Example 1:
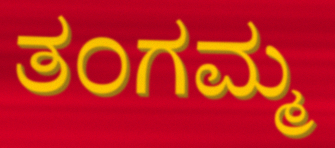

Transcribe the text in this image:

ತಂಗಮ್ಮ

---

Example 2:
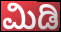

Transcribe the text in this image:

ಮಿಡಿ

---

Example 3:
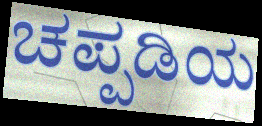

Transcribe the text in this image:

ಚಪ್ಪಡಿಯ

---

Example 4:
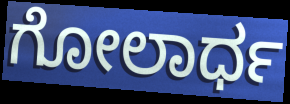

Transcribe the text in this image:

ಗೋಲಾರ್ಧ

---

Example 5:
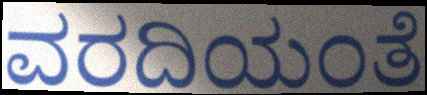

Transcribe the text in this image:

ವರದಿಯಂತೆ